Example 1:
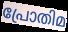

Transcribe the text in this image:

പ്രോതിമ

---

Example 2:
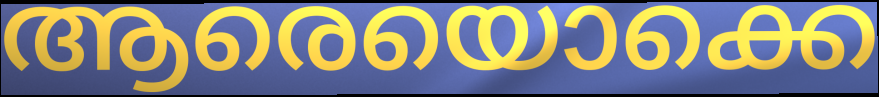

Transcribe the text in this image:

ആരെയൊക്കെ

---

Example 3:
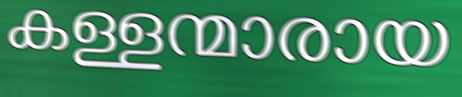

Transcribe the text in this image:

കള്ളന്മാരായ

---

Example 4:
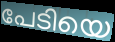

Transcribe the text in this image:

പേടിയെ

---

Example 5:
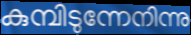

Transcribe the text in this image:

കുമ്പിടുന്നേനിന്നു